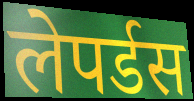
लेपर्डस